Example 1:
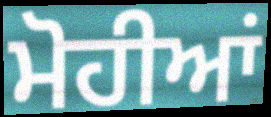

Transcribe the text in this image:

ਮੋਹੀਆਂ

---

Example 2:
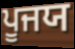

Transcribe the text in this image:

ਪੂਜਯ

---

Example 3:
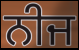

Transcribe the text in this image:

ਨੀਜ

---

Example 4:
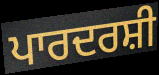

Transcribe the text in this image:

ਪਾਰਦਰਸ਼ੀ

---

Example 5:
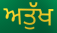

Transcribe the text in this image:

ਅਤੁੱਖ